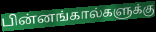
பின்னங்கால்களுக்கு